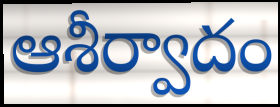
ఆశీర్వాదం